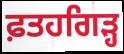
ਫ਼ਤਹਗਿੜ੍ਹ